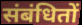
संबंधितों